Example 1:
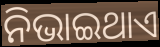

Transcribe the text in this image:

ନିଭାଇଥାଏ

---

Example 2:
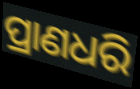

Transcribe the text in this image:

ପ୍ରାଣଧରି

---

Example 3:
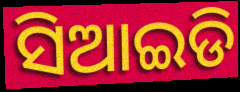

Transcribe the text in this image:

ସିଆଇଡି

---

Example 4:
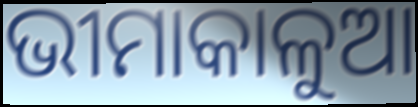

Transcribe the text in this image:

ଭୀମାକାଳୁଆ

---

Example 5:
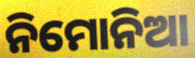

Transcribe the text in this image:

ନିମୋନିଆ